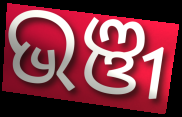
ଭଞ୍ଜ